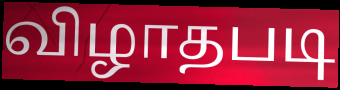
விழாதபடி